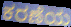
ಕರಣೆಯ